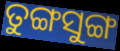
ତୁଙ୍ଗସୁଙ୍ଗ